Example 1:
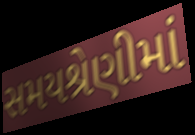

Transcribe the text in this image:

સમયશ્રેણીમાં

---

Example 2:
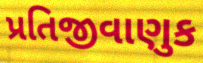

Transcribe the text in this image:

પ્રતિજીવાણુક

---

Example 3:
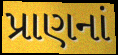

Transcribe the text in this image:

પ્રાણનાં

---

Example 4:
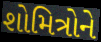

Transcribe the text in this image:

શોમિત્રોને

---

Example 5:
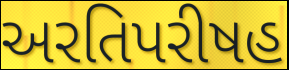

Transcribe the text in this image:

અરતિપરીષહ